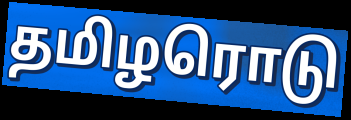
தமிழரொடு